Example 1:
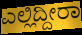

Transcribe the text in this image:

ಎಲ್ಲಿದ್ದೀರಾ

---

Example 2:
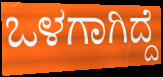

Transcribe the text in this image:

ಒಳಗಾಗಿದ್ದೆ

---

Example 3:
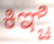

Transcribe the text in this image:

ಕಿಞ್ಚಿ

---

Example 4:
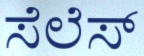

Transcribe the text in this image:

ಸೆಲೆಸ್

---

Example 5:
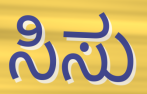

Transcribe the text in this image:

ಸಿಸು